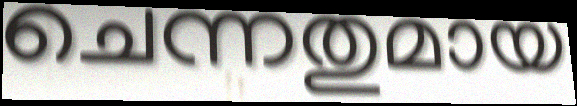
ചെന്നതുമായ